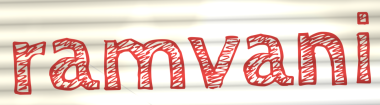
ramvani